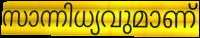
സാന്നിധ്യവുമാണ്